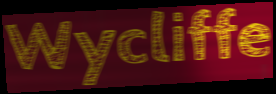
Wycliffe